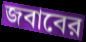
জবাবের